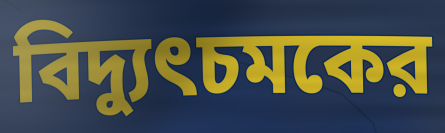
বিদ্যুৎচমকের